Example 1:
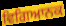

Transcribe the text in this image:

ਵਿਗਿਆਨਕ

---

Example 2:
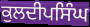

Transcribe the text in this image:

ਕੁਲਦੀਪਸਿੰਘ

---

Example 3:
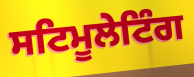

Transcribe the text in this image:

ਸਟਿਮੂਲੇਟਿੰਗ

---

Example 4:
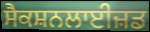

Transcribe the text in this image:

ਸੈਕਸ਼ਨਲਾਈਜ਼ਡ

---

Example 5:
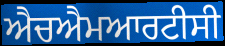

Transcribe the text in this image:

ਐਚਐਮਆਰਟੀਸੀ